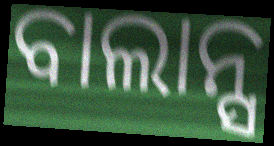
ବାଲାନ୍ସ